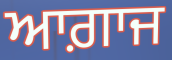
ਆਗ਼ਾਜ